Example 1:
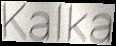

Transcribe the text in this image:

Kalka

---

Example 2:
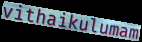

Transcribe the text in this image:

vithaikulumam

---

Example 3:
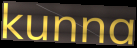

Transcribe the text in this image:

kunna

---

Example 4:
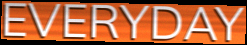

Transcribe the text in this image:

EVERYDAY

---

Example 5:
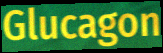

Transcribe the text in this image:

Glucagon